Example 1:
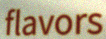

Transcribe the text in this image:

flavors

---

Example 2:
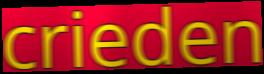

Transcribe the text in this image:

crieden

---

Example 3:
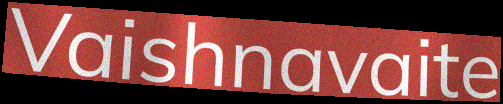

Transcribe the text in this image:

Vaishnavaite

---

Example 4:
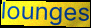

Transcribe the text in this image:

lounges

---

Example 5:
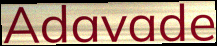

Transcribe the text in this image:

Adavade